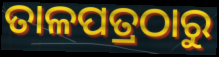
ତାଳପତ୍ରଠାରୁ